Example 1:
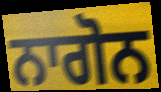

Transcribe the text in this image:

ਨਾਗੋਨ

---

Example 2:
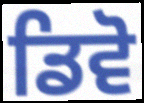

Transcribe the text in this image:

ਡਿਵੋ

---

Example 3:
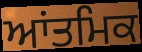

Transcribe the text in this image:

ਆਂਤਮਿਕ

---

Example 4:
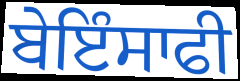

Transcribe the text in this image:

ਬੇਇੰਸਾਫੀ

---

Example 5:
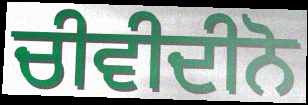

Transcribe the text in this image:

ਚੀਵੀਦੀਨੋ